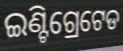
ଇଣ୍ଟିଗ୍ରେଟେଡ